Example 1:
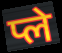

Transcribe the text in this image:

प्ले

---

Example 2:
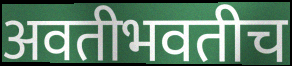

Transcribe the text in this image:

अवतीभवतीच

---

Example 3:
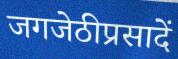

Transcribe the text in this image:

जगजेठीप्रसादें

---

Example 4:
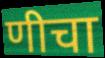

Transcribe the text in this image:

णीचा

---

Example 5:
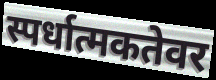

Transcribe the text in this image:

स्पर्धात्मकतेवर